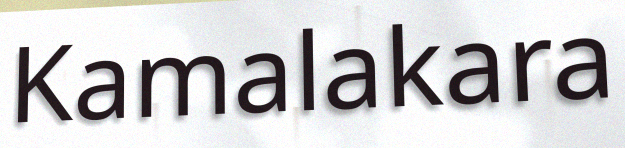
Kamalakara